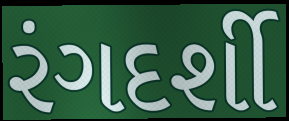
રંગદર્શી